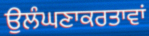
ਉਲੰਘਣਾਕਰਤਾਵਾਂ